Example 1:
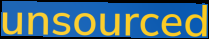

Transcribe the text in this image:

unsourced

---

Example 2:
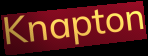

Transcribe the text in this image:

Knapton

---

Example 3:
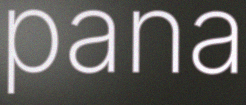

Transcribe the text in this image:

pana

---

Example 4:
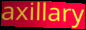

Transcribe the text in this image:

axillary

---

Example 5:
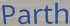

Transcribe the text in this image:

Parth